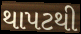
થાપટથી